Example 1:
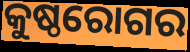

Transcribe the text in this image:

କୁଷ୍ଠରୋଗର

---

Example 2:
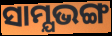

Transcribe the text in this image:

ସାମ୍ଯଭଙ୍ଗ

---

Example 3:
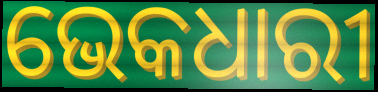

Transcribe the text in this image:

ଭେକଧାରୀ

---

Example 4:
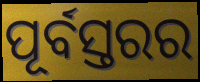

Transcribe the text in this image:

ପୂର୍ବସ୍ତରର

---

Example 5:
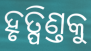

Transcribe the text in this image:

ହୃତ୍ପିଣ୍ତକୁ